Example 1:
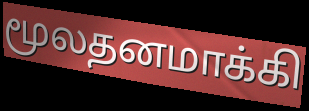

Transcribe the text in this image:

மூலதனமாக்கி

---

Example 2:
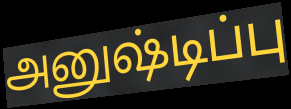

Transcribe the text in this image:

அனுஷ்டிப்பு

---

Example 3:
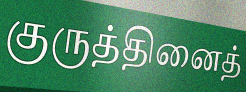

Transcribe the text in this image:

குருத்தினைத்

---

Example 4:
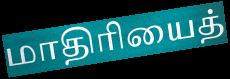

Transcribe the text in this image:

மாதிரியைத்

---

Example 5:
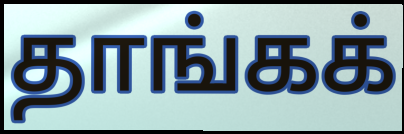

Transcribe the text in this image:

தாங்கக்